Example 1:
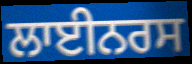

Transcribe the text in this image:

ਲਾਈਨਰਸ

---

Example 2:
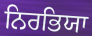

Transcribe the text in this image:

ਨਿਰਭਿਯਾ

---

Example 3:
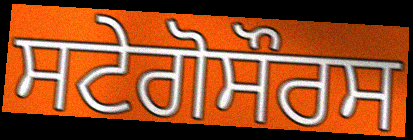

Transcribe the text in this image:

ਸਟੇਗੋਸੌਰਸ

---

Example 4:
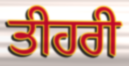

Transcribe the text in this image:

ਤੀਹਰੀ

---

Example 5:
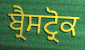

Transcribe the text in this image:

ਬ੍ਰੈਸਟ੍ਰੋਕ